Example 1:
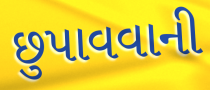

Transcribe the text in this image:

છુપાવવાની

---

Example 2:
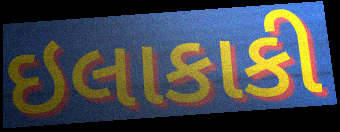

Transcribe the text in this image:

ઇલાકાકી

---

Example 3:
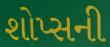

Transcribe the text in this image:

શોપ્સની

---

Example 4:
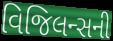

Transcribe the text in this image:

વિજિલન્સની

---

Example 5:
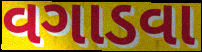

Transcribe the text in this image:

વગાડવા